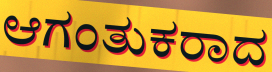
ಆಗಂತುಕರಾದ